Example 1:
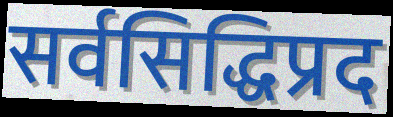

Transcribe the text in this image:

सर्वसिद्धिप्रद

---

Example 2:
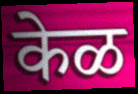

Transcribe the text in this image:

केळ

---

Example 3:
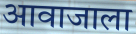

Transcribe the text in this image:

आवाजाला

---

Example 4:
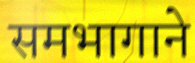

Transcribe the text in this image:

समभागाने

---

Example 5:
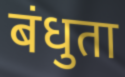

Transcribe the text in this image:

बंधुता